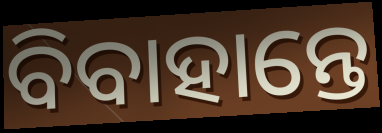
ବିବାହାନ୍ତେ